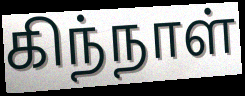
கிந்நாள்